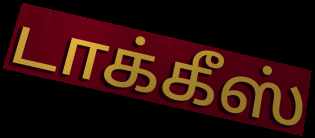
டாக்கீஸ்